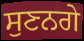
ਸੁਣਨਗੇ